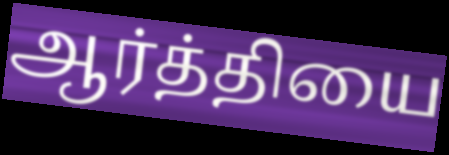
ஆர்த்தியை